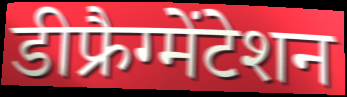
डीफ्रैग्मेंटेशन